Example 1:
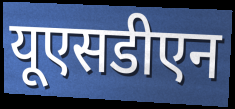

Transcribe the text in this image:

यूएसडीएन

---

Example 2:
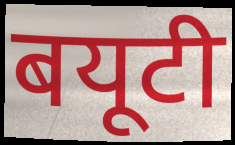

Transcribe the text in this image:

बयूटी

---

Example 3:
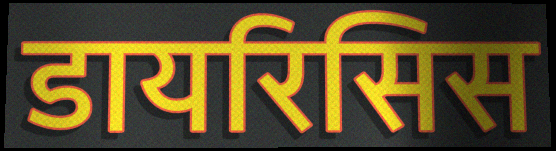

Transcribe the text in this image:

डायरिसिस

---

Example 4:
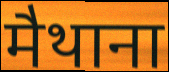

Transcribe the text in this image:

मैथाना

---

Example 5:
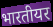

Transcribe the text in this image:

भारतीयर